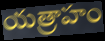
యత్రాహం